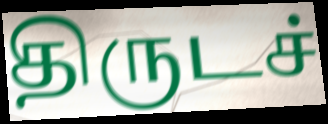
திருடச்